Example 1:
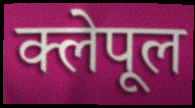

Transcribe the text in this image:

क्लेपूल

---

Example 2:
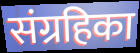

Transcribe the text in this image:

संग्रहिका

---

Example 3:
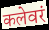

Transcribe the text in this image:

कलेवरं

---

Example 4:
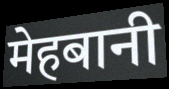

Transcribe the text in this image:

मेहबानी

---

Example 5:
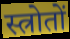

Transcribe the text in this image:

स्त्रोतों